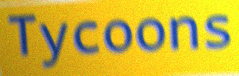
Tycoons